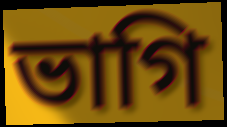
ভাগি